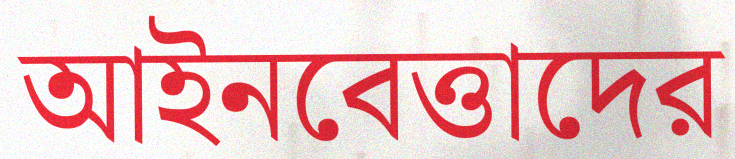
আইনবেত্তাদের